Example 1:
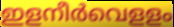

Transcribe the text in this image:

ഇളനീർവെളളം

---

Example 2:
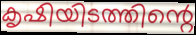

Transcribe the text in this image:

കൃഷിയിടത്തിന്റെ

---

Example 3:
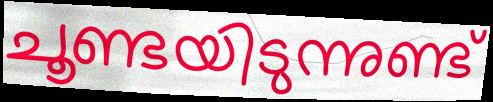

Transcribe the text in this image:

ചൂണ്ടയിടുന്നുണ്ട്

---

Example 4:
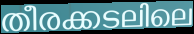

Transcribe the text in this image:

തീരക്കടലിലെ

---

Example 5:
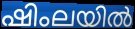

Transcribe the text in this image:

ഷിംലയിൽ